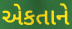
એકતાને